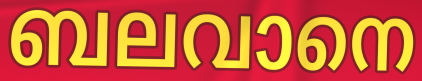
ബലവാനെ